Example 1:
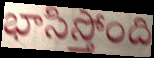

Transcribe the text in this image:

భాసిస్తోంది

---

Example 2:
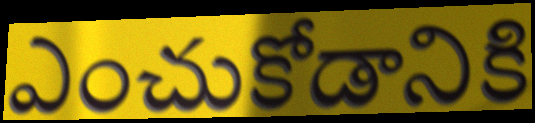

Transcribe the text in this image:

ఎంచుకోడానికి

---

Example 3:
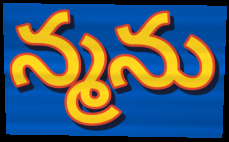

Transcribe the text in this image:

న్మను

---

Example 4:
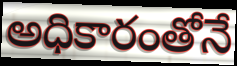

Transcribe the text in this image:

అధికారంతోనే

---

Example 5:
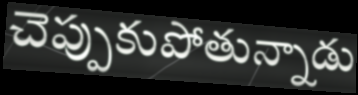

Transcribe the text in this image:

చెప్పుకుపోతున్నాడు